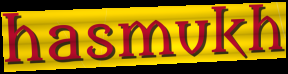
hasmukh